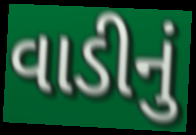
વાડીનું